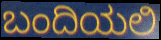
ಬಂದಿಯಲಿ